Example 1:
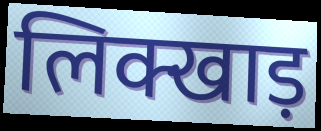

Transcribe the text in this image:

लिक्खाड़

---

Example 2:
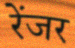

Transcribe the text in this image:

रेंजर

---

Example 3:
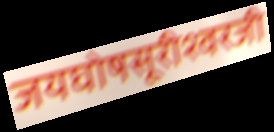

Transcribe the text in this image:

जयघोषसूरीश्वरजी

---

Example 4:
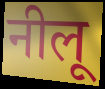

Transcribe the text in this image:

नीलू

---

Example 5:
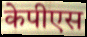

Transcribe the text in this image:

केपीएस